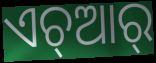
ଏଚ୍ଆର୍